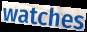
watches